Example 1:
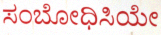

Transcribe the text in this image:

ಸಂಬೋಧಿಸಿಯೇ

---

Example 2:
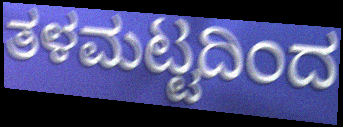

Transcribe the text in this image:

ತಳಮಟ್ಟದಿಂದ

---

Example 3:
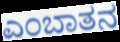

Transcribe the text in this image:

ಎಂಬಾತನ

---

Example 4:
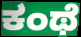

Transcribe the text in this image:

ಕಂಥೆ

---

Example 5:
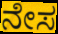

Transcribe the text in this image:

ನೇಸ